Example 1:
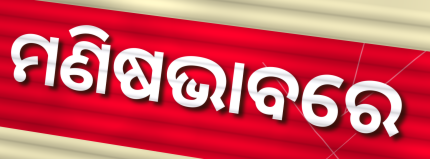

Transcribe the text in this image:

ମଣିଷଭାବରେ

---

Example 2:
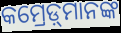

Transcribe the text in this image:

କମ୍ରେଡ଼୍‍ମାନଙ୍କ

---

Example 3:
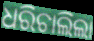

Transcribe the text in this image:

ଧରିଚାଲିଲା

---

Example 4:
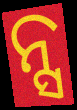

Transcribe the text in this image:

ନ୍ସ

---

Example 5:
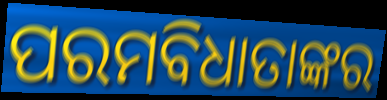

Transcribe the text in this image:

ପରମବିଧାତାଙ୍କର